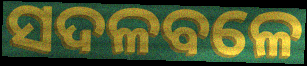
ସଦଳବଳେ